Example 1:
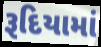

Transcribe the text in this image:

રૂદિયામાં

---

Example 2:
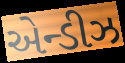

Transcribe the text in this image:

એન્ડીઝ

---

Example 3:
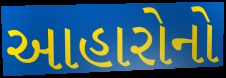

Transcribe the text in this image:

આહારોનો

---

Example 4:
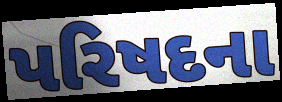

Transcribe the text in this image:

પરિષદના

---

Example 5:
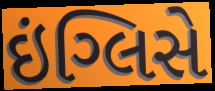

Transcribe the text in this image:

ઇંગ્લિસે